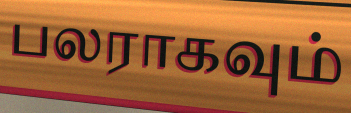
பலராகவும்